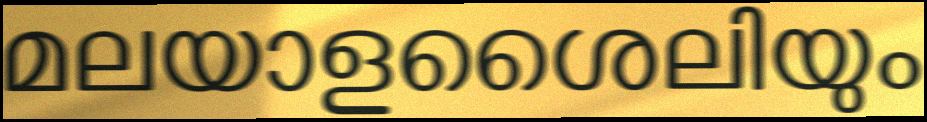
മലയാളശൈലിയും